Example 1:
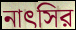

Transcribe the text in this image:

নাৎসির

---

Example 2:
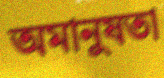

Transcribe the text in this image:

অমানুষতা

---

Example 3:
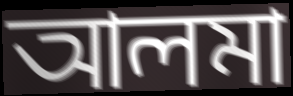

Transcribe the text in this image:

আলমা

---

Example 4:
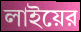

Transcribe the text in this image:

লাইয়ের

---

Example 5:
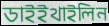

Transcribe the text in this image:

ডাইইথাইলিন